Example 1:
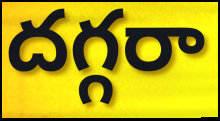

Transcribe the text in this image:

దగ్గరా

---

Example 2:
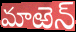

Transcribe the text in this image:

మాఱెన్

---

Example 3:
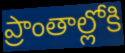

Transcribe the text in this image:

ప్రాంతాల్లోకి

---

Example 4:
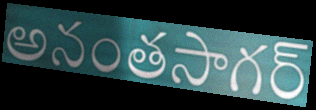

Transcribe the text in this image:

అనంతసాగర్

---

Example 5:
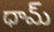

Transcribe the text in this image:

ధామ్